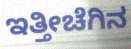
ಇತ್ತೀಚೆಗಿನ